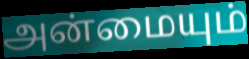
அன்மையும்